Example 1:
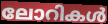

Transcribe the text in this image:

ലോറികൾ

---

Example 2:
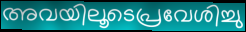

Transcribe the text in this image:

അവയിലൂടെപ്രവേശിച്ചു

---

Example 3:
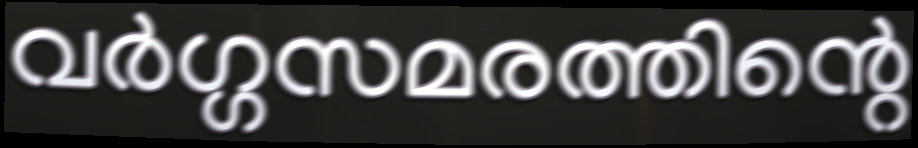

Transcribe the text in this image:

വർഗ്ഗസമരത്തിന്റെ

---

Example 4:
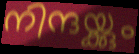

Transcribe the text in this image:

നിന്ദയ്ക്കും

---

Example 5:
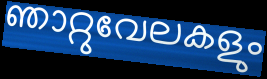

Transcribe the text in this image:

ഞാറ്റുവേലകളും